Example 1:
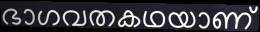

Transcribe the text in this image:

ഭാഗവതകഥയാണ്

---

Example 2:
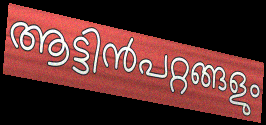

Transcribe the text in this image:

ആട്ടിൻപറ്റങ്ങളും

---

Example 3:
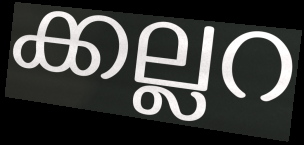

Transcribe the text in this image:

ക്കല്ലറ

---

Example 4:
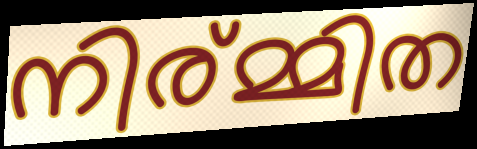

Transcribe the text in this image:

നിര്മ്മിത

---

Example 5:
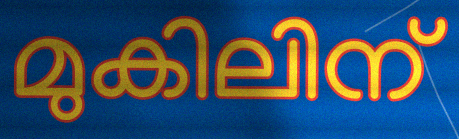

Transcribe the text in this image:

മുകിലിന്